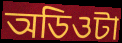
অডিওটা